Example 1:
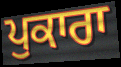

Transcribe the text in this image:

ਪੁਕਾਰਾ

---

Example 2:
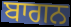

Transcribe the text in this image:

ਬਾਗਨ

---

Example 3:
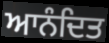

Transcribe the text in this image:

ਆਨੰਦਿਤ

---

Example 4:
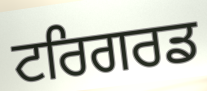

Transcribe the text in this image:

ਟਰਿਗਰਡ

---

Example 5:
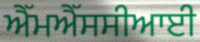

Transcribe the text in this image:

ਐੱਮਐੱਸਸੀਆਈ